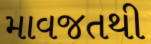
માવજતથી